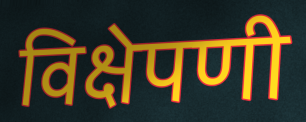
विक्षेपणी